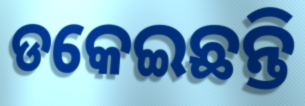
ଡକେଇଛନ୍ତି